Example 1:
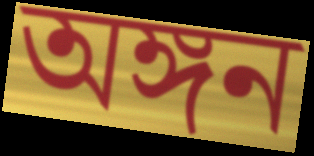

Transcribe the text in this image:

অঙ্গন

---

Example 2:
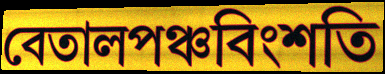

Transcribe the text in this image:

বেতালপঞ্চবিংশতি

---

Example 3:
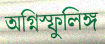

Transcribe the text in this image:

অগ্নিস্ফুলিঙ্গ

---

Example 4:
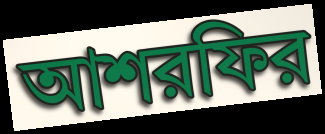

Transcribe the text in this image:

আশরফির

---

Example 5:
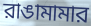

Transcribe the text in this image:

রাঙামামার